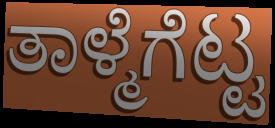
ತಾಳ್ಮೆಗೆಟ್ಟ